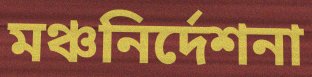
মঞ্চনির্দেশনা